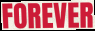
FOREVER